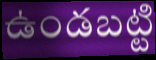
ఉండబట్టి